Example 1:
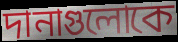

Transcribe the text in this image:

দানাগুলোকে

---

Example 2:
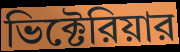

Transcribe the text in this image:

ভিক্টেরিয়ার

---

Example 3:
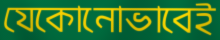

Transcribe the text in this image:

যেকোনোভাবেই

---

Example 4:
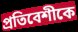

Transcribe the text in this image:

প্রতিবেশীকে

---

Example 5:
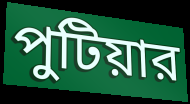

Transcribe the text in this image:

পুটিয়ার